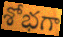
శోభగా